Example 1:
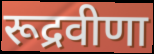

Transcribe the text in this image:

रूद्रवीणा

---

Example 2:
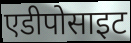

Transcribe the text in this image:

एडीपोसाइट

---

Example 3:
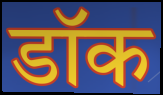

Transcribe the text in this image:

डॉक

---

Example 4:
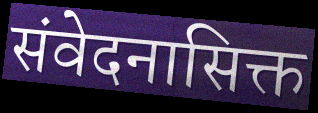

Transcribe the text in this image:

संवेदनासिक्त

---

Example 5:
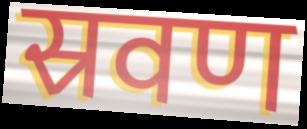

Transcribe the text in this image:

स्रवण